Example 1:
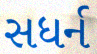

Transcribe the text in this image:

સધર્ન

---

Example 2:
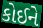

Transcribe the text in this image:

કોઈને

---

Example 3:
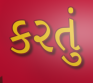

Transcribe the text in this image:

કરતું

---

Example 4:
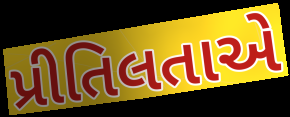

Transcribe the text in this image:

પ્રીતિલતાએ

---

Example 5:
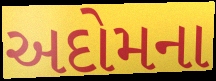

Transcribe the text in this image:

અદોમના